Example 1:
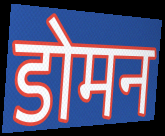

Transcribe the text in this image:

डोमन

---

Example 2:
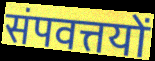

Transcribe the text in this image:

संपवत्तयों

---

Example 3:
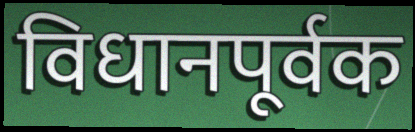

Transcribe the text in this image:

विधानपूर्वक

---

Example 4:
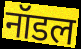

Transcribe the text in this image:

नॉडल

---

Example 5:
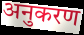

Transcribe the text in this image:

अनुकरण